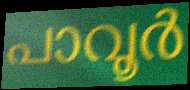
പാവൂർ